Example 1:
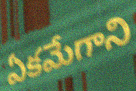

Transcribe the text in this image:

ఏకమేగాని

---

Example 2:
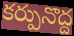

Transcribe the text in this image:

కర్పునొద్ద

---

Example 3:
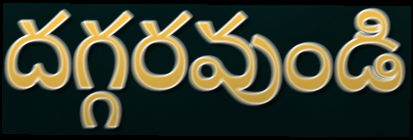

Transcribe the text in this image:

దగ్గరవుండి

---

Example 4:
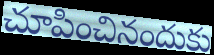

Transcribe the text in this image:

చూపించినందుకు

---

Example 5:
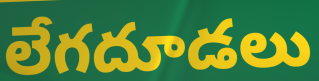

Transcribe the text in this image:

లేగదూడలు